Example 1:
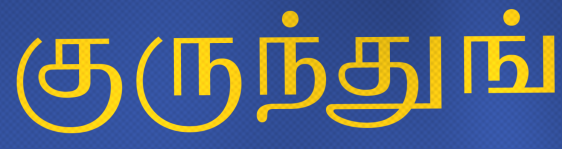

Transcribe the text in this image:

குருந்துங்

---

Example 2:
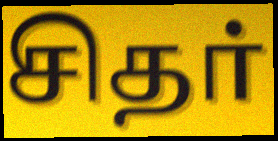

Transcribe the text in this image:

சிதர்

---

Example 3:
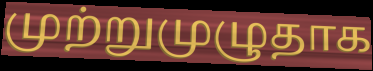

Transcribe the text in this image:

முற்றுமுழுதாக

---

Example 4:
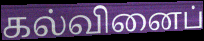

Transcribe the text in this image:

கல்வினைப்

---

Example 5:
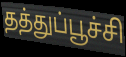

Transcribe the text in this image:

தத்துப்பூச்சி